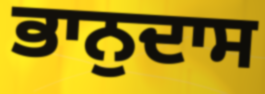
ਭਾਨੁਦਾਸ